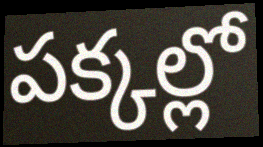
పక్కల్లో